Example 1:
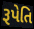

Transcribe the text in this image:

રૂપેતિ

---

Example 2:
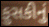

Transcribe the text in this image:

ફુસકીનું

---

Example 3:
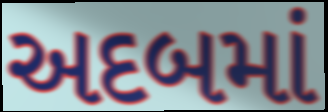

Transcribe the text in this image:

અદબમાં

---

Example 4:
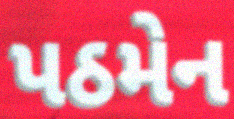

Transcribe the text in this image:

પઠમેન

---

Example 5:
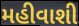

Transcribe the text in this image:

મહીવાશી